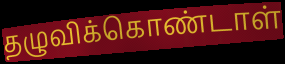
தழுவிக்கொண்டாள்